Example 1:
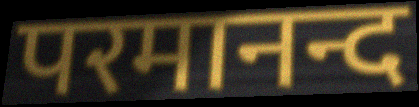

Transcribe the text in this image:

परमानन्‍द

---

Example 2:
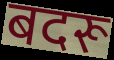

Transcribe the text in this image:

बदरू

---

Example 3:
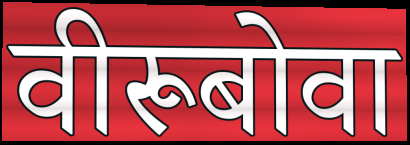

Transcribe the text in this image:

वीरूबोवा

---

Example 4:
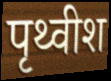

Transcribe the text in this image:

पृथ्वीश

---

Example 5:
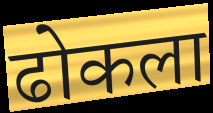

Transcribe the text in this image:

ढोकला